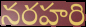
నరహరి